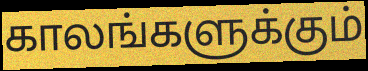
காலங்களுக்கும்